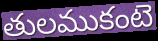
తులముకంటె